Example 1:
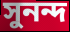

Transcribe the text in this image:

সুনন্দ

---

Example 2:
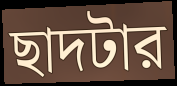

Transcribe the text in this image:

ছাদটার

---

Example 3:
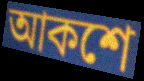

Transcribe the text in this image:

আকশে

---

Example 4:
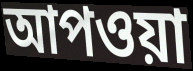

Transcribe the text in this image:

আপওয়া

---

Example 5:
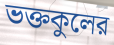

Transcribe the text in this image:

ভক্তকুলের